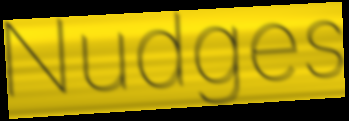
Nudges